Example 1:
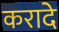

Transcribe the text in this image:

करादे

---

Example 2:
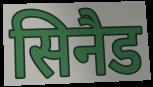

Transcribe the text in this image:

सिनैड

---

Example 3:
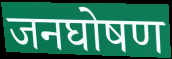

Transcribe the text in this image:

जनघोषण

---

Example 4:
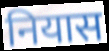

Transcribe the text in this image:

नियास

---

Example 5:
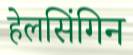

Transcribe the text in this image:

हेलसिंगिन